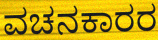
ವಚನಕಾರರ